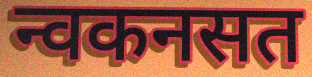
न्वकनसत